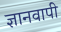
ज्ञानवापी